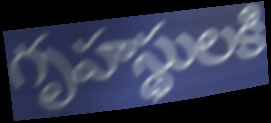
గృహస్థులకి